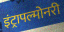
इंट्रापल्मोनरी